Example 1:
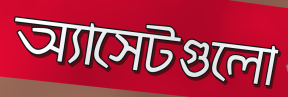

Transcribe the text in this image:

অ্যাসেটগুলো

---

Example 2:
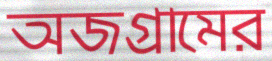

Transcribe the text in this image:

অজগ্রামের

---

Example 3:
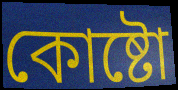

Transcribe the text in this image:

কোষ্টো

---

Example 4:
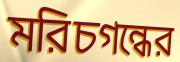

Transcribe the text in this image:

মরিচগন্ধের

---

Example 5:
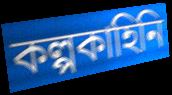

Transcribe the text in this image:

কল্পকাহিনি